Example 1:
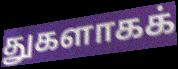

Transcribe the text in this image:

துகளாகக்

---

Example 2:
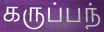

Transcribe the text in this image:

கருப்பந்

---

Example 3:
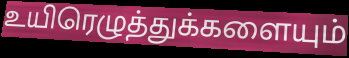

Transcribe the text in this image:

உயிரெழுத்துக்களையும்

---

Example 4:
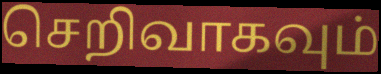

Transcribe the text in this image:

செறிவாகவும்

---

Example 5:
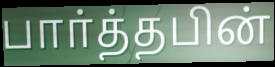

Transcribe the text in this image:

பார்த்தபின்